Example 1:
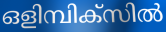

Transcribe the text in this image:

ഒളിമ്പിക്സിൽ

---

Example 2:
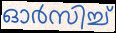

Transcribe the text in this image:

ഓർസിച്ച്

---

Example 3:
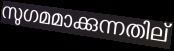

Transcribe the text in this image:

സുഗമമാക്കുന്നതില്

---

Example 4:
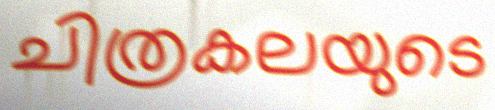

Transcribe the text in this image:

ചിത്രകലയുടെ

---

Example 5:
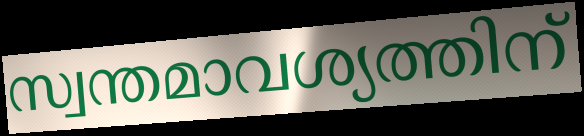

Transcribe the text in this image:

സ്വന്തമാവശ്യത്തിന്